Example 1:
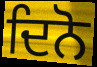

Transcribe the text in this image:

ਦਿਨੋ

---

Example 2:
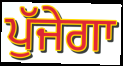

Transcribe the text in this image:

ਪੁੱਜੇਗਾ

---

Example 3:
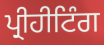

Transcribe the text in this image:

ਪ੍ਰੀਹੀਟਿੰਗ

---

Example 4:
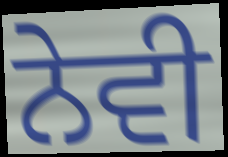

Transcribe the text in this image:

ਨੇਵੀ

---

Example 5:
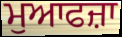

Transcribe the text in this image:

ਮੁਆਫਜ਼ਾ